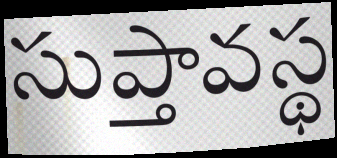
సుప్తావస్థ